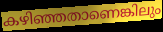
കഴിഞ്ഞതാണെങ്കിലും